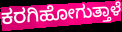
ಕರಗಿಹೋಗುತ್ತಾಳೆ